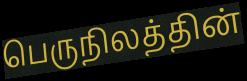
பெருநிலத்தின்